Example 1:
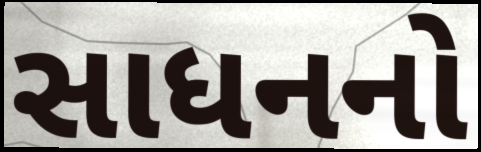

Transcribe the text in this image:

સાધનનો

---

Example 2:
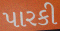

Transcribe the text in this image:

પારકી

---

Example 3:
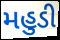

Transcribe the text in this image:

મહુડી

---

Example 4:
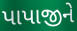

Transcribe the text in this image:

પાપાજીને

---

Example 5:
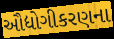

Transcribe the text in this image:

ઔદ્યોગીકરણના